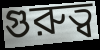
গুৰুত্ব